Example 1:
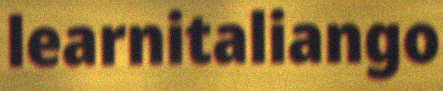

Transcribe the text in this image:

learnitaliango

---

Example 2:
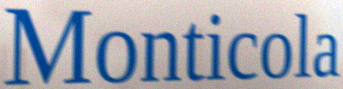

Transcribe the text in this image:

Monticola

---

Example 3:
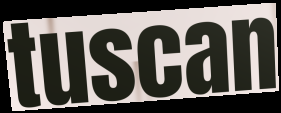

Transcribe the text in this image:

tuscan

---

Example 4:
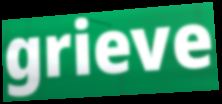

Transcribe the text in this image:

grieve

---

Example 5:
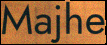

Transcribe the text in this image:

Majhe